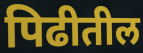
पिढीतील